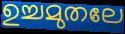
ഉച്ചമുതലേ